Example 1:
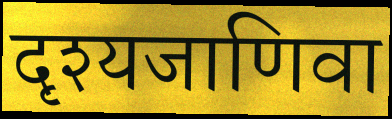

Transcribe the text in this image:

दृश्यजाणिवा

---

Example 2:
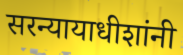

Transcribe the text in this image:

सरन्यायाधीशांनी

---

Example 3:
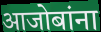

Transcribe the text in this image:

आजोबांना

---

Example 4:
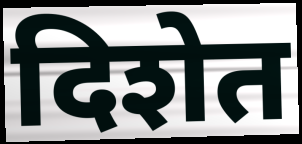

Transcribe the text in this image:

दिशेत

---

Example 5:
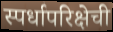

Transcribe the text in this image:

स्पर्धापरिक्षेची